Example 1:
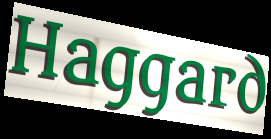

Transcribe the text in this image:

Haggard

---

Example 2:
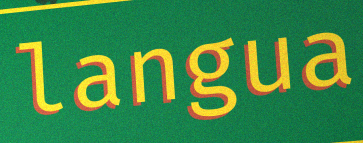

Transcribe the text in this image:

langua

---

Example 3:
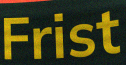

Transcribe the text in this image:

Frist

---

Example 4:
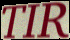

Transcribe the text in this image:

TIR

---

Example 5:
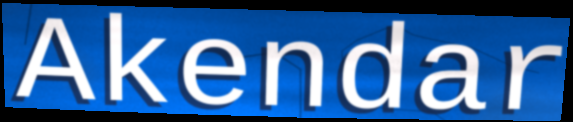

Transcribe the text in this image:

Akendar